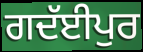
ਗਦੱਈਪੁਰ